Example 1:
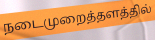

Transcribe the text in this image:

நடைமுறைத்தளத்தில்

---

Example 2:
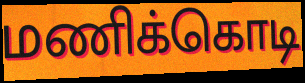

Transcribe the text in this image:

மணிக்கொடி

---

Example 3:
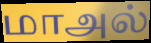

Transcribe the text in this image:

மாஅல்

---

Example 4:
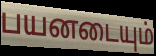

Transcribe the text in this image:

பயனடையும்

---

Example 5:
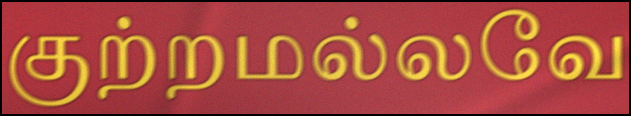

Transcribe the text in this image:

குற்றமல்லவே